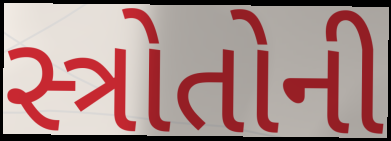
સ્ત્રોતોની